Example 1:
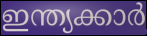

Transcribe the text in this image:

ഇന്ത്യക്കാർ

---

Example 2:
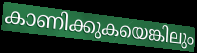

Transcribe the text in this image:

കാണിക്കുകയെങ്കിലും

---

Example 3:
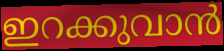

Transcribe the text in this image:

ഇറക്കുവാൻ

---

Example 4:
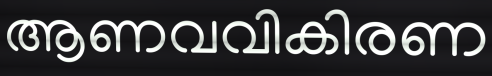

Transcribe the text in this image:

ആണവവികിരണ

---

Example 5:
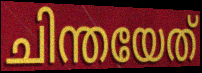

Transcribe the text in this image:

ചിന്തയേത്